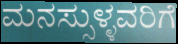
ಮನಸ್ಸುಳ್ಳವರಿಗೆ